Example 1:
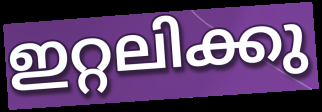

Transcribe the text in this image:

ഇറ്റലിക്കു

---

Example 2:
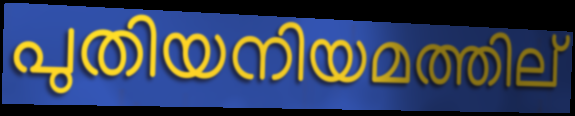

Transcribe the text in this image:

പുതിയനിയമത്തില്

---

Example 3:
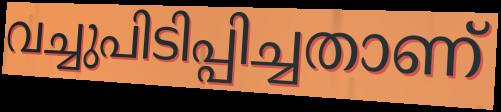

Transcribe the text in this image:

വച്ചുപിടിപ്പിച്ചതാണ്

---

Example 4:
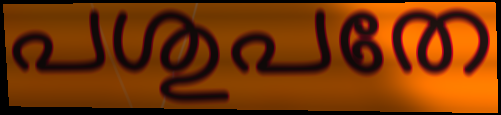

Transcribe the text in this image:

പശുപതേ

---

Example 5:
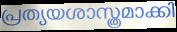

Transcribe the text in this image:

പ്രത്യയശാസ്ത്രമാക്കി